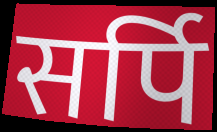
सर्पि